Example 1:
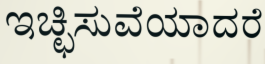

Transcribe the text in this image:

ಇಚ್ಛಿಸುವೆಯಾದರೆ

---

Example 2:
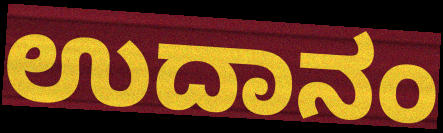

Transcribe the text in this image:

ಉದಾನಂ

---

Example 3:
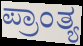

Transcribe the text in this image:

ಪ್ರಾಂತ್ಯ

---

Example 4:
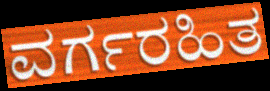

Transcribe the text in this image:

ವರ್ಗರಹಿತ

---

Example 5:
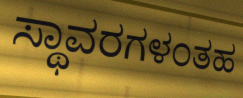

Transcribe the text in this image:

ಸ್ಥಾವರಗಳಂತಹ